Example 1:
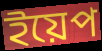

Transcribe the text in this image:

ইয়েপ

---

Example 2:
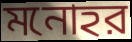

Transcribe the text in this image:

মনোহর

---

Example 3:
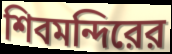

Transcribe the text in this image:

শিবমন্দিরের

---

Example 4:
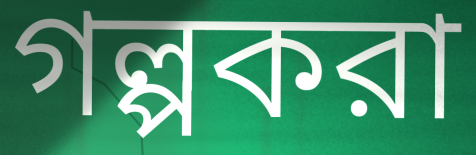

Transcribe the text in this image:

গল্পকরা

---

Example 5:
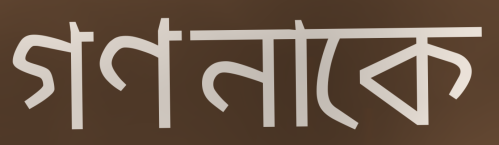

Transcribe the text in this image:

গণনাকে